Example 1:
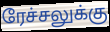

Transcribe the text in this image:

ரேச்சலுக்கு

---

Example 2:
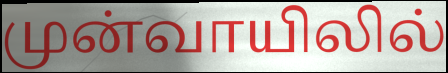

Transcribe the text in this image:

முன்வாயிலில்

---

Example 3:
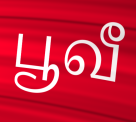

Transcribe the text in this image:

பூவீ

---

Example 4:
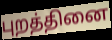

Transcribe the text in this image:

புறத்தினை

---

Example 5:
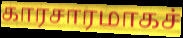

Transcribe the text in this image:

காரசாரமாகச்